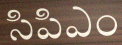
సిపిఎం